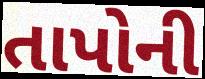
તાપોની